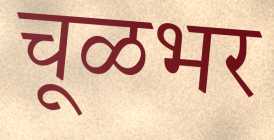
चूळभर